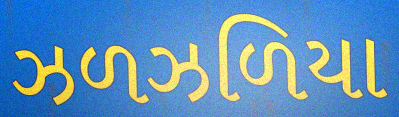
ઝળઝળિયા